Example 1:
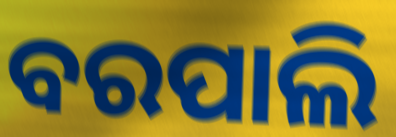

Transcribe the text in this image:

ବରପାଲି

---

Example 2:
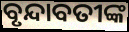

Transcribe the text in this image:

ବୃନ୍ଦାବତୀଙ୍କ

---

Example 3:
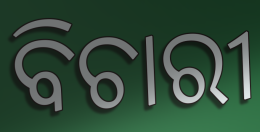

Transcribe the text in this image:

ବିଚାରୀ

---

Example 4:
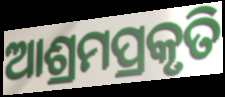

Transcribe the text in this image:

ଆଶ୍ରମପ୍ରକୃତି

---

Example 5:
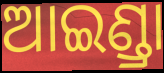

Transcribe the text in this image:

ଆଇଣ୍ଡ୍ରା